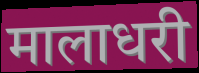
मालाधरी